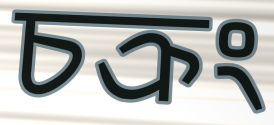
চক্রং